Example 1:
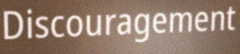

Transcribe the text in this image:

Discouragement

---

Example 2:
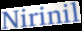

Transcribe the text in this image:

Nirinil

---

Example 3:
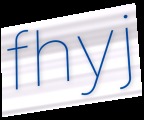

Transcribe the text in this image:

fhyj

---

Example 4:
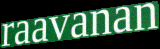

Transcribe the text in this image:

raavanan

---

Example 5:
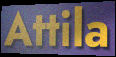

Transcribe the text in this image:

Attila